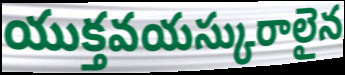
యుక్తవయస్కురాలైన